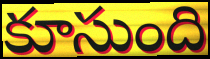
కూసుంది